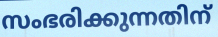
സംഭരിക്കുന്നതിന്